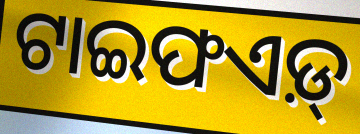
ଟାଇଫଏଡ଼୍